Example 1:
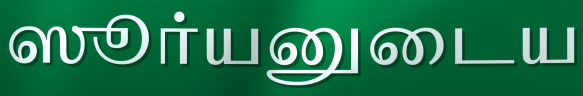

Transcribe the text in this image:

ஸூர்யனுடைய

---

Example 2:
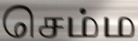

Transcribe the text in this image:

செம்ம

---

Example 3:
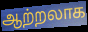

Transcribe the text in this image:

ஆற்றலாக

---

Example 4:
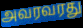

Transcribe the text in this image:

அவரவரது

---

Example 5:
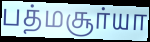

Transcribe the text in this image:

பத்மசூர்யா